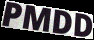
PMDD